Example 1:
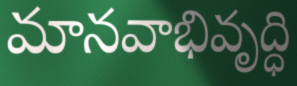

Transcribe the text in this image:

మానవాభివృద్ధి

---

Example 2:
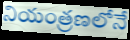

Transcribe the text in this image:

నియంత్రణలోనే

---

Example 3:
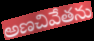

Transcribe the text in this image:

అణచివేతను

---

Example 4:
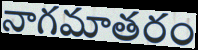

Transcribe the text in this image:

నాగమాతరం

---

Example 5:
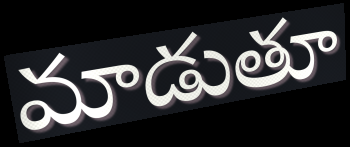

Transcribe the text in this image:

మాడుతూ